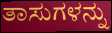
ತಾಸುಗಳನ್ನು